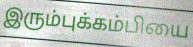
இரும்புக்கம்பியை